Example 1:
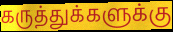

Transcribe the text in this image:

கருத்துக்களுக்கு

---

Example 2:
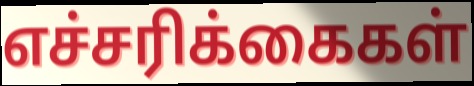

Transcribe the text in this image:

எச்சரிக்கைகள்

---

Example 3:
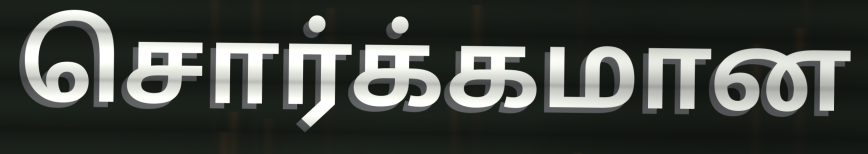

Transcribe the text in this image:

சொர்க்கமான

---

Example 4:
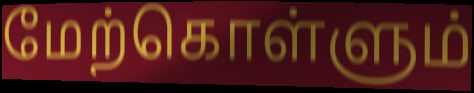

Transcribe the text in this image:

மேற்கொள்ளும்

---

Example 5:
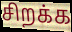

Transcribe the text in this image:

சிறக்க